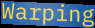
Warping